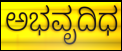
ಅಭವೃದಿಧ